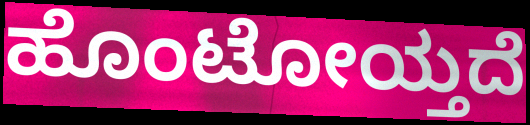
ಹೊಂಟೋಯ್ತದೆ